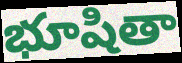
భూషితా